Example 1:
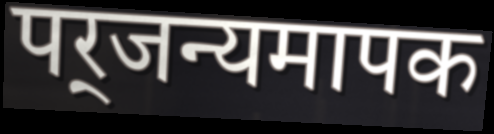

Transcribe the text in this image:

पर्जन्यमापक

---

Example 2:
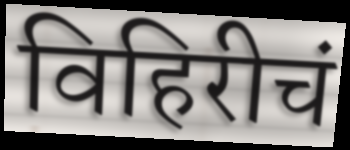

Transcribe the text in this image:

विहिरीचं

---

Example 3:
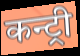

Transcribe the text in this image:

कन्ट्री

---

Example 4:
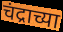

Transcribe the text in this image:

चंद्राच्या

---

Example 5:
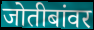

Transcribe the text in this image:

जोतीबांवर